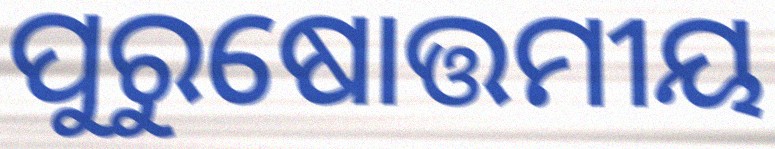
ପୁରୁଷୋତ୍ତମୀୟ